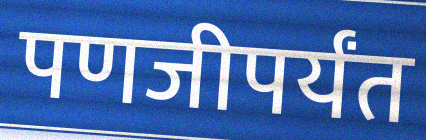
पणजीपर्यंत